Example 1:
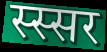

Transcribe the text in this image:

स्स्सर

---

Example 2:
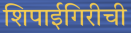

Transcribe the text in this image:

शिपाईगिरीची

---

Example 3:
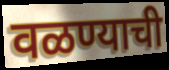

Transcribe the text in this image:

वळण्याची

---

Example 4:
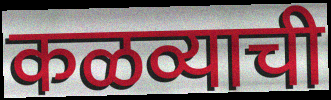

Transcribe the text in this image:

कळव्याची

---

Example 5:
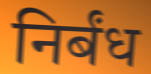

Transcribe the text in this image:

निर्बंध